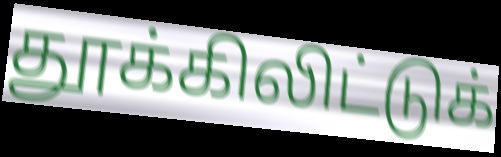
தூக்கிலிட்டுக்